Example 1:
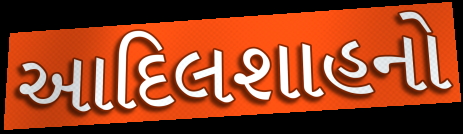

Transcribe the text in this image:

આદિલશાહનો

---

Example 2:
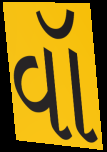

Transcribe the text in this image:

વૉ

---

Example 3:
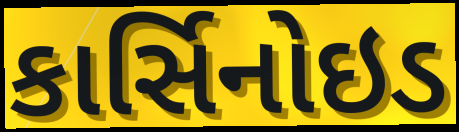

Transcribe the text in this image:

કાર્સિનોઇડ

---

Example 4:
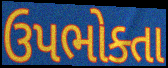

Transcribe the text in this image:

ઉપભોક્તા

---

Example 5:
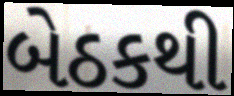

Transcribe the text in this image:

બેઠકથી